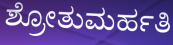
ಶ್ರೋತುಮರ್ಹತಿ